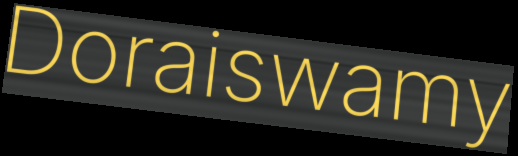
Doraiswamy